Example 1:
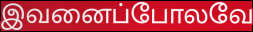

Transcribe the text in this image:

இவனைப்போலவே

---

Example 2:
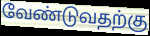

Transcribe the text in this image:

வேண்டுவதற்கு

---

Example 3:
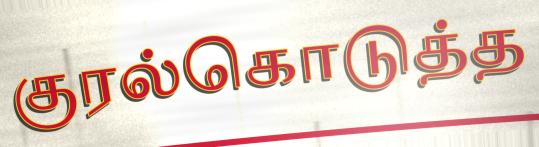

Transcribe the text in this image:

குரல்கொடுத்த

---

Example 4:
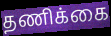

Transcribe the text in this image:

தணிக்கை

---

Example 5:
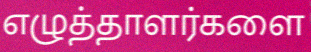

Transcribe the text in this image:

எழுத்தாளர்களை